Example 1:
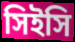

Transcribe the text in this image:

সিইসি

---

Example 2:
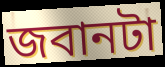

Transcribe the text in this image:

জবানটা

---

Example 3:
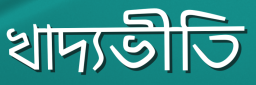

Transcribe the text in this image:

খাদ্যভীতি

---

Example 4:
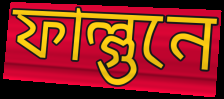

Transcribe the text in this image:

ফাল্গুনে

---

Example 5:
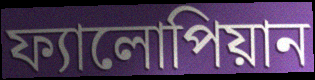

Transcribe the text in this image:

ফ্যালোপিয়ান